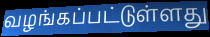
வழங்கப்பட்டுள்ளது